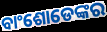
ବାଂଶୋଡେଙ୍କର